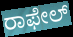
ರಾಫೇಲ್